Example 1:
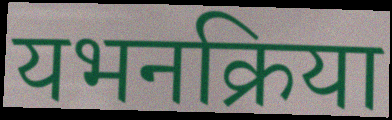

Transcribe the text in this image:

यभनक्रिया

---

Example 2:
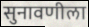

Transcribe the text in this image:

सुनावणीला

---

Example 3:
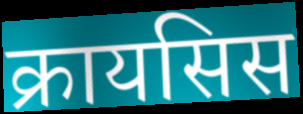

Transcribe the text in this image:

क्रायसिस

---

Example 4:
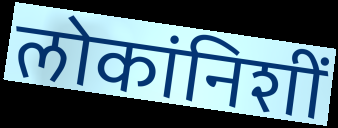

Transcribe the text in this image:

लोकांनिशीं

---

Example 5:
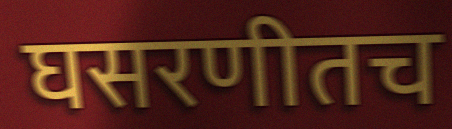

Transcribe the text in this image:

घसरणीतच